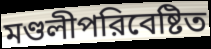
মণ্ডলীপরিবেষ্টিত